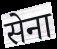
सेना